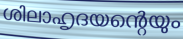
ശിലാഹൃദയന്റെയും